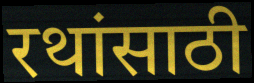
रथांसाठी